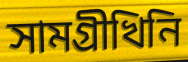
সামগ্ৰীখিনি